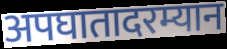
अपघातादरम्यान